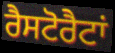
ਰੈਸਟੋਰੈਟਾਂ